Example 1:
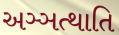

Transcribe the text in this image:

અઞ્ઞત્થાતિ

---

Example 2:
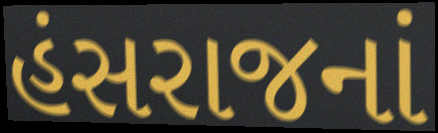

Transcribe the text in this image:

હંસરાજનાં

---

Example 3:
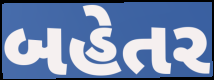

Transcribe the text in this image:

બહેતર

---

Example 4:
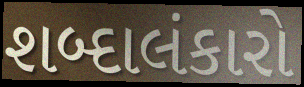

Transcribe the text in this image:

શબ્દાલંકારો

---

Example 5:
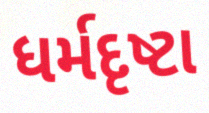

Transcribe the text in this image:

ધર્મદૃષ્ટા